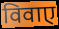
विवाए